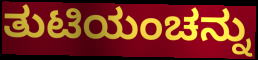
ತುಟಿಯಂಚನ್ನು